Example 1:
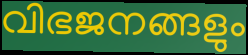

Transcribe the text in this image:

വിഭജനങ്ങളും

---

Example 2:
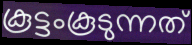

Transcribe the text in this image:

കൂട്ടംകൂടുന്നത്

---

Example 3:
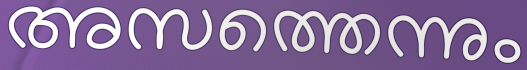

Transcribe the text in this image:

അസത്തെന്നും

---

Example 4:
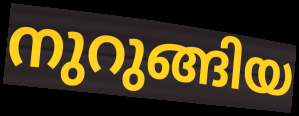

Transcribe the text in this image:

നുറുങ്ങിയ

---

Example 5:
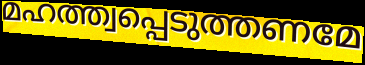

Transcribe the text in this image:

മഹത്ത്വപ്പെടുത്തണമേ